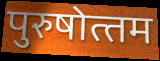
पुरुषोत्‍तम